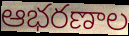
ఆభరణాల